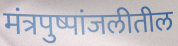
मंत्रपुष्पांजलीतील